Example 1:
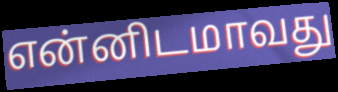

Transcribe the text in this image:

என்னிடமாவது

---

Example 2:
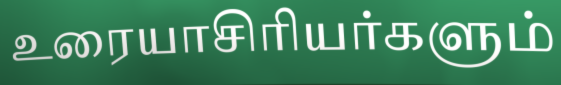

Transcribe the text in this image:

உரையாசிரியர்களும்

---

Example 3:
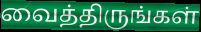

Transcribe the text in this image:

வைத்திருங்கள்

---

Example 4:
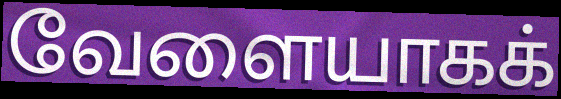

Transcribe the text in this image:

வேளையாகக்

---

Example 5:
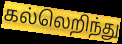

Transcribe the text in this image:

கல்லெறிந்து